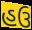
હઉ